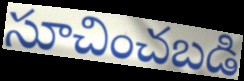
సూచించబడి